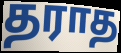
தராத